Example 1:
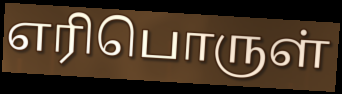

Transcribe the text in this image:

எரிபொருள்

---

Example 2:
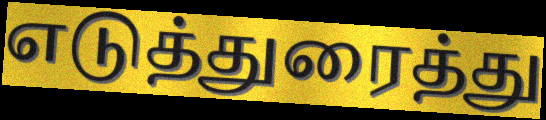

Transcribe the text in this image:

எடுத்துரைத்து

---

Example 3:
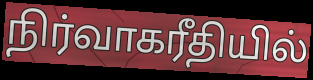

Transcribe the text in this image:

நிர்வாகரீதியில்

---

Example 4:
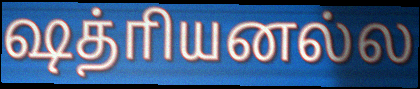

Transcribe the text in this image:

ஷத்ரியனல்ல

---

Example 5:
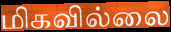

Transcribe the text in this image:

மிகவில்லை